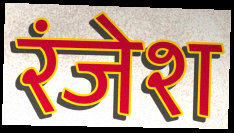
रंजेश